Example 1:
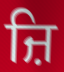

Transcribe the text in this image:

ਜ਼ਿ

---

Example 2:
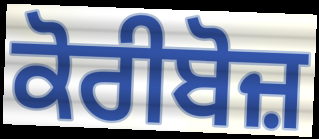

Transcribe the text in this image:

ਕੋਰੀਬੋਜ਼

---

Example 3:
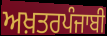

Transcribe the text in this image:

ਅਖ਼ਤਰਪੰਜਾਬੀ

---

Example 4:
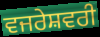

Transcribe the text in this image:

ਵਜਰੇਸ਼ਵਰੀ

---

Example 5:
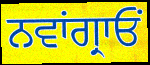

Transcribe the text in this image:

ਨਵਾਂਗ੍ਰਾਓਂ